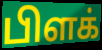
பிளக்